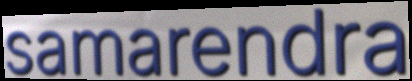
samarendra